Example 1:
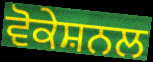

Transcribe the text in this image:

ਵੋਕੇਸ਼ਨਲ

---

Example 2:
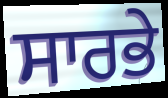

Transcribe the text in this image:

ਸਾਰਭੇ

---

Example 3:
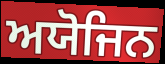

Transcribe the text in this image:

ਅਯੋਜਿਨ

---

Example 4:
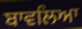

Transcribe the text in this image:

ਬਾਵਲਿਆ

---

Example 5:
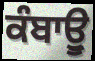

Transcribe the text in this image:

ਕੰਬਾਊੁ